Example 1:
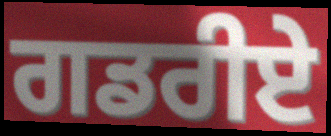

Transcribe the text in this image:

ਗਡਰੀਏ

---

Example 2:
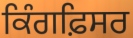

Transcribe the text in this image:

ਕਿੰਗਫ਼ਿਸਰ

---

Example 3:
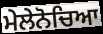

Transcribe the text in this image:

ਮੇਲੇਨੋਚਿਆ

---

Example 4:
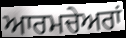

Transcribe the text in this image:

ਆਰਮਚੇਅਰਾਂ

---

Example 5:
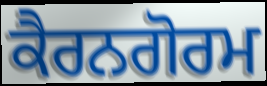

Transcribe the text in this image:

ਕੈਰਨਗੋਰਮ